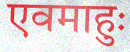
एवमाहुः